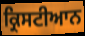
ਕ੍ਰਿਸਟੀਆਨ